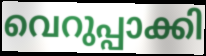
വെറുപ്പാക്കി